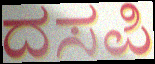
ದಸಪಿ